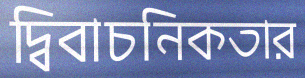
দ্বিবাচনিকতার